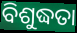
ବିଶୁଦ୍ଧତା